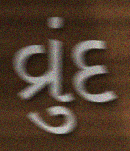
વ્રુંદ